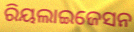
ରିୟଲାଇଜେସନ